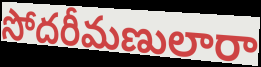
సోదరీమణులారా